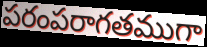
పరంపరాగతముగా